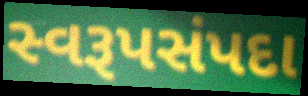
સ્વરૂપસંપદા